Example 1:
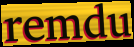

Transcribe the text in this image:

remdu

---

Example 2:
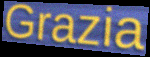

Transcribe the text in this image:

Grazia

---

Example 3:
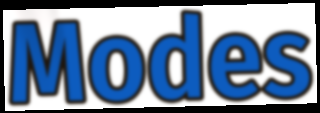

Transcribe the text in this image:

Modes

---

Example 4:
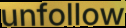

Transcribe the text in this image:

unfollow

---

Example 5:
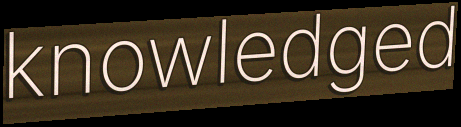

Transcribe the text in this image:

knowledged